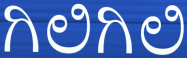
ಗಿಲಿಗಿಲಿ